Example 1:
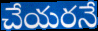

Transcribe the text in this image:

చేయరనే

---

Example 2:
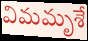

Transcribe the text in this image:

విమమృశే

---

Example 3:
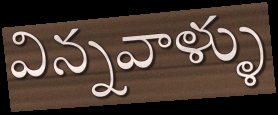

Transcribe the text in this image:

విన్నవాళ్ళు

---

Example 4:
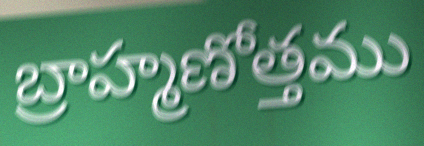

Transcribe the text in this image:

బ్రాహ్మణోత్తము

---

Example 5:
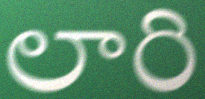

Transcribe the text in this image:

లారి